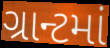
ગ્રાન્ટમાં